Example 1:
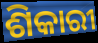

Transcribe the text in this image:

ଶିକାରୀ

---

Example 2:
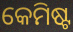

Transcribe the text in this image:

କେମିଷ୍ଟ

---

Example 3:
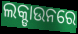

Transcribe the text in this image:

ଲକ୍ଡାଉନରେ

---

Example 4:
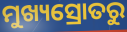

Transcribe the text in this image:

ମୁଖ୍ୟସ୍ରୋତରୁ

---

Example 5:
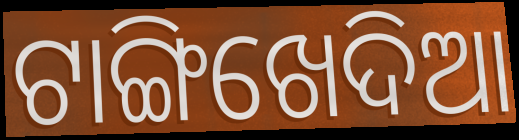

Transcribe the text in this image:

ଟାଙ୍ଗିଖେଦିଆ